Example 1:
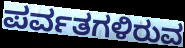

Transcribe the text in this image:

ಪರ್ವತಗಳಿರುವ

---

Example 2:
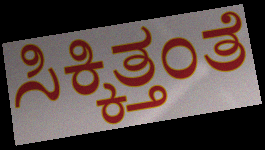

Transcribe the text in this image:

ಸಿಕ್ಕಿತ್ತಂತೆ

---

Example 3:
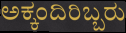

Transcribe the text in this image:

ಅಕ್ಕಂದಿರಿಬ್ಬರು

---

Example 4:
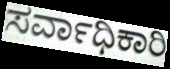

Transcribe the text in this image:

ಸರ್ವಾಧಿಕಾರಿ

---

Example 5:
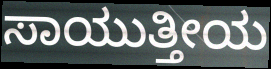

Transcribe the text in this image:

ಸಾಯುತ್ತೀಯ